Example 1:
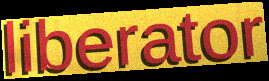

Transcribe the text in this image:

liberator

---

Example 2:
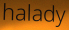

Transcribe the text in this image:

halady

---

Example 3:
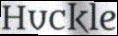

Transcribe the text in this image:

Huckle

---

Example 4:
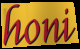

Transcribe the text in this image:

honi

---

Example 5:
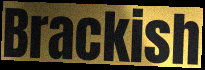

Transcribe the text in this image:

Brackish